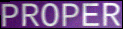
PROPER